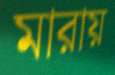
মারায়